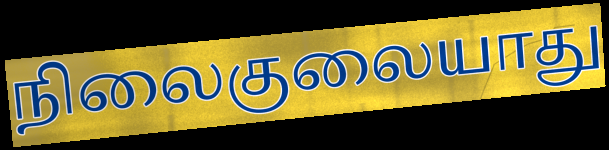
நிலைகுலையாது